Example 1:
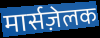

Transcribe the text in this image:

मार्सज़ेलक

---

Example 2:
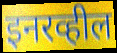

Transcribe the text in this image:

इनरव्हील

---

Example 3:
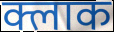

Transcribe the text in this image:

क्लाक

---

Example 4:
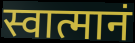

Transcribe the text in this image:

स्वात्मानं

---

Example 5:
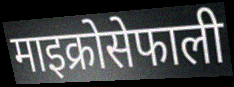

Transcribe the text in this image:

माइक्रोसेफाली